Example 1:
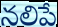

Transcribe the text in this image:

నలిపే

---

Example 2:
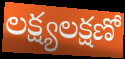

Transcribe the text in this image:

లక్ష్యలక్షణో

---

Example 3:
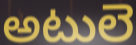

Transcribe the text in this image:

అటులె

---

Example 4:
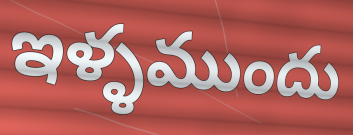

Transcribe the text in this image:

ఇళ్ళముందు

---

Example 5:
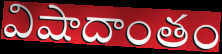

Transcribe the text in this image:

విషాదాంతం